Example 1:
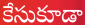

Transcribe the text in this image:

కేసుకూడా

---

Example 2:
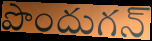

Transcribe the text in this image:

పొందుగన్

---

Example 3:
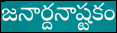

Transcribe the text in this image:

జనార్దనాష్టకం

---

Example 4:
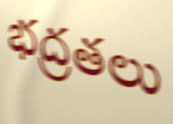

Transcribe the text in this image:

భద్రతలు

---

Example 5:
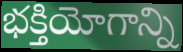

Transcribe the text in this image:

భక్తియోగాన్ని